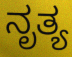
ನೃತ್ಯ